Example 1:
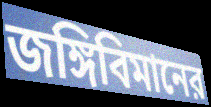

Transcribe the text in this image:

জঙ্গিবিমানের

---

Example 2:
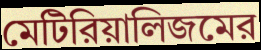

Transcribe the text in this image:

মেটিরিয়ালিজমের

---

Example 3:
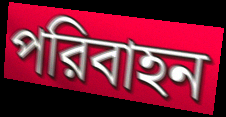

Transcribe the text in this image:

পরিবাহন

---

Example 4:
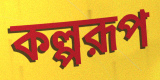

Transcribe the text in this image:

কল্পরূপ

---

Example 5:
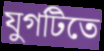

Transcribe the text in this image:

যুগটিতে